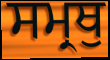
ਸਮ੍ਰਥੁ